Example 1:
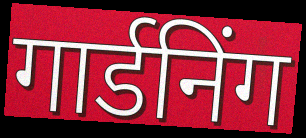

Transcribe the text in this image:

गार्डनिंग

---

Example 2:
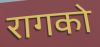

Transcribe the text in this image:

रागको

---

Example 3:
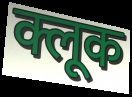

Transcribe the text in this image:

क्लूक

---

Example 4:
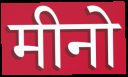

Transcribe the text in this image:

मीनो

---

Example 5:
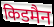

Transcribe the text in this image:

किडमैन